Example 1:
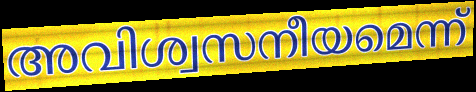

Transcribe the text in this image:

അവിശ്വസനീയമെന്ന്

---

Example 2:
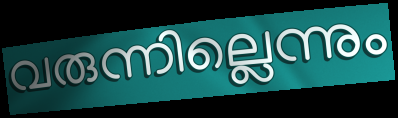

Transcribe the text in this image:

വരുന്നില്ലെന്നും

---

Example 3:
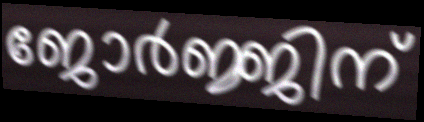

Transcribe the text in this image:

ജോർജ്ജിന്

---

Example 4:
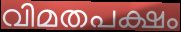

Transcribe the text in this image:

വിമതപക്ഷം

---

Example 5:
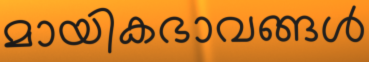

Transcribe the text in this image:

മായികഭാവങ്ങൾ